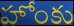
హోంకు